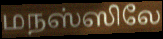
மநஸ்ஸிலே